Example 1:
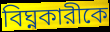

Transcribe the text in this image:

বিঘ্নকারীকে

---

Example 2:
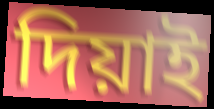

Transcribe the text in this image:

দিয়াই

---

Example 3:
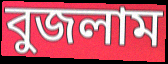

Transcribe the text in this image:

বুজলাম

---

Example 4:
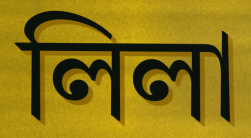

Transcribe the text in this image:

লিলা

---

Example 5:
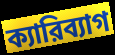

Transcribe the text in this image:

ক্যারিব্যাগ